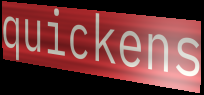
quickens